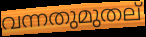
വന്നതുമുതല്